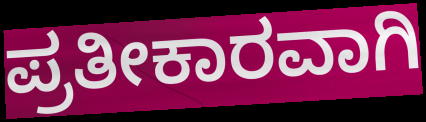
ಪ್ರತೀಕಾರವಾಗಿ